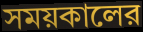
সময়কালের